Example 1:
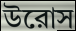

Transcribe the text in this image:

উরোস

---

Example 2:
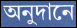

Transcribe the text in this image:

অনুদানে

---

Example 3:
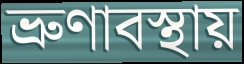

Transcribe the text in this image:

ভ্রুণাবস্থায়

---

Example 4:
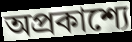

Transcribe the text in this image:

অপ্রকাশ্যে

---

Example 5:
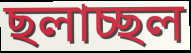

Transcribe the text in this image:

ছলাচ্ছল